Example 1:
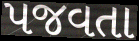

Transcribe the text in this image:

પજવતા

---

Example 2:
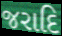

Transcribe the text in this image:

જરાદિ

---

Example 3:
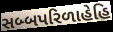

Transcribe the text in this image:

સબ્બપરિળાહેહિ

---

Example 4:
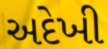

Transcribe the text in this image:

અદેખી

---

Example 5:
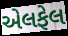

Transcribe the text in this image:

એલફેલ